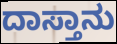
ದಾಸ್ತಾನು